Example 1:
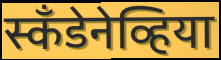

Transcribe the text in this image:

स्कॅंडेनेव्हिया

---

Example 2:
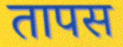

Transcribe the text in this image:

तापस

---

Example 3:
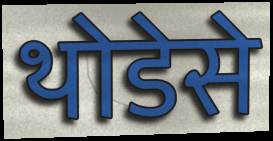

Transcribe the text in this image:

थोडेसे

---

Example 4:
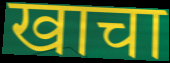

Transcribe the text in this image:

खाचा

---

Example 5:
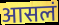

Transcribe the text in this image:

आसलं